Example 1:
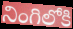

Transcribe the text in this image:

నింగిలోకి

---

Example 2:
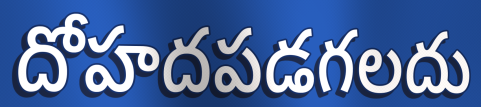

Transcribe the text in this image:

దోహదపడగలదు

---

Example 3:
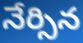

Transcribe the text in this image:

నేర్సిన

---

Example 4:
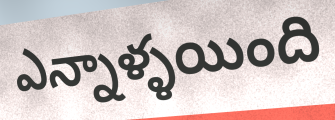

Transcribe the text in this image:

ఎన్నాళ్ళయింది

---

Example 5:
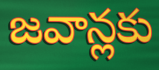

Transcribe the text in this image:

జవాన్లకు